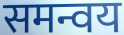
समन्वय